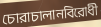
চোরাচালানবিরোধী